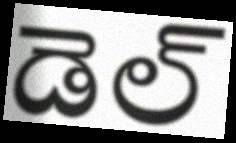
డెల్